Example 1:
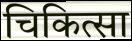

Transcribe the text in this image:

चिकित्सा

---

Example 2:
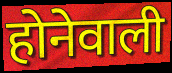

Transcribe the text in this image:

होनेवाली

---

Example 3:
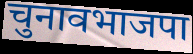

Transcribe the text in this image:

चुनावभाजपा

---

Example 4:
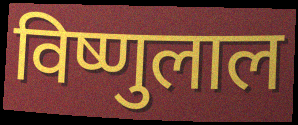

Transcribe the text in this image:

विष्णुलाल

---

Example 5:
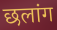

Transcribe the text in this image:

छलांग